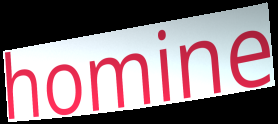
homine